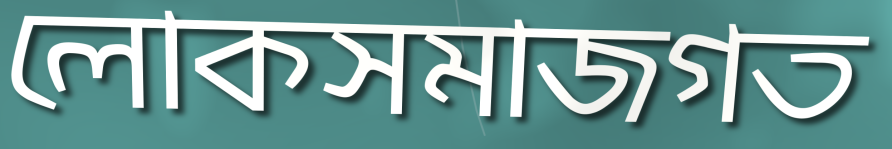
লোকসমাজগত